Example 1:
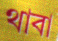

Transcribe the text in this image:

থাবা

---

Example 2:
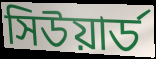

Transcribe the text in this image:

সিউয়ার্ড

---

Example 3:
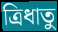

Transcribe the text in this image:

ত্রিধাতু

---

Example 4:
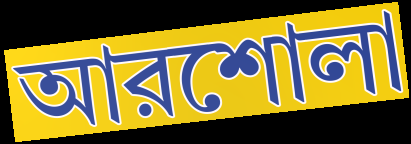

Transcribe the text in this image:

আরশোলা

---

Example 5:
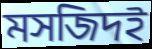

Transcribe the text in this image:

মসজিদই